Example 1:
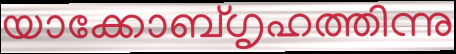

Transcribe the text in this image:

യാക്കോബ്ഗൃഹത്തിന്നു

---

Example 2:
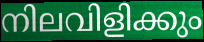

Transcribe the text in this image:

നിലവിളിക്കും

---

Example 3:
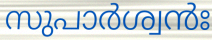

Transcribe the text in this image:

സുപാർശ്വൻഃ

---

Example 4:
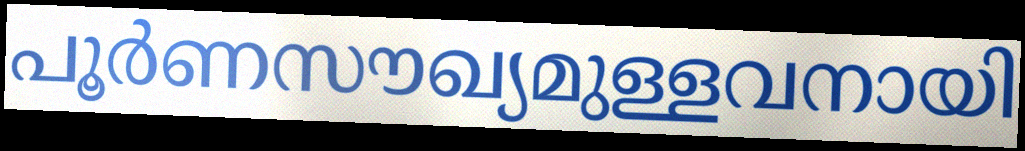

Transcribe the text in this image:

പൂർണസൗഖ്യമുള്ളവനായി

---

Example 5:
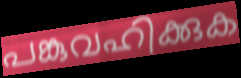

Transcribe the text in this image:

പങ്കുവഹിക്കുക